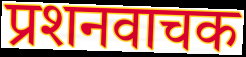
प्रशनवाचक